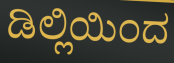
ಡಿಲ್ಲಿಯಿಂದ